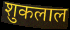
शुकलाल